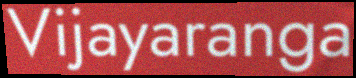
Vijayaranga